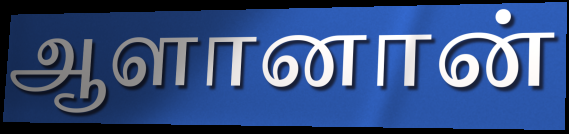
ஆளானான்